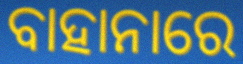
ବାହାନାରେ